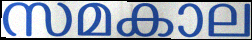
സമകാല